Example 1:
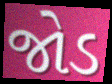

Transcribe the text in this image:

જોડ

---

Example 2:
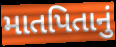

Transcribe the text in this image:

માતપિતાનું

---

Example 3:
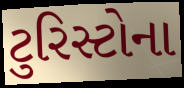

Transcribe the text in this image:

ટુરિસ્ટોના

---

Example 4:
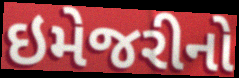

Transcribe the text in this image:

ઇમેજરીનો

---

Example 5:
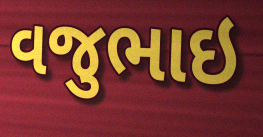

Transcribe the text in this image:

વજુભાઇ